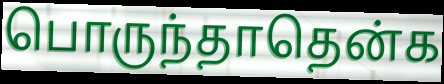
பொருந்தாதென்க